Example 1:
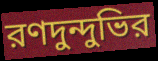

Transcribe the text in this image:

রণদুন্দুভির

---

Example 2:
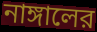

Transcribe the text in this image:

নাঙ্গালের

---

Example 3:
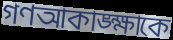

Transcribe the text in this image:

গণআকাঙ্ক্ষাকে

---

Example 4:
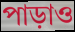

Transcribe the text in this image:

পাড়াও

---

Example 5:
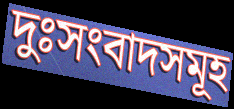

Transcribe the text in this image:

দুঃসংবাদসমূহ